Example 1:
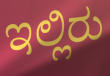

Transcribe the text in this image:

ಇಲ್ಲಿರು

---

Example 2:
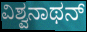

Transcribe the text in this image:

ವಿಶ್ವನಾಥನ್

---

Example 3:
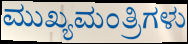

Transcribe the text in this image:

ಮುಖ್ಯಮಂತ್ರಿಗಳು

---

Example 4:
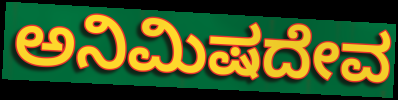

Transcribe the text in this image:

ಅನಿಮಿಷದೇವ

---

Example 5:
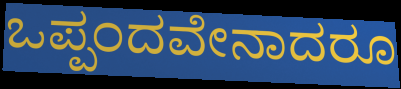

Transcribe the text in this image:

ಒಪ್ಪಂದವೇನಾದರೂ